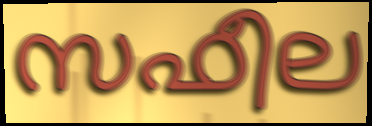
സഫീല